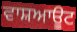
ਵਾਸ਼ਆਊਟ